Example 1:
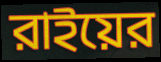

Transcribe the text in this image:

রাইয়ের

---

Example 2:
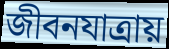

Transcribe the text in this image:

জীবনযাত্রায়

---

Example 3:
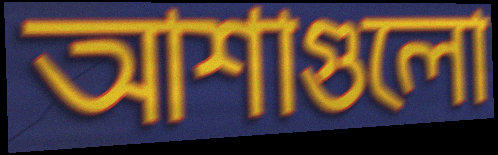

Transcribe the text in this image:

আশাগুলো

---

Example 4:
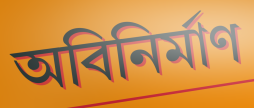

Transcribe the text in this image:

অবিনির্মাণ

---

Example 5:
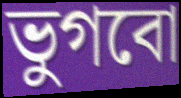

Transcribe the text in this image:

ভুগবো